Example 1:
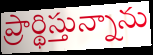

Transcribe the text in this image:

ప్రార్థిస్తున్నాను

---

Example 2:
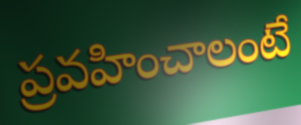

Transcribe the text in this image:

ప్రవహించాలంటే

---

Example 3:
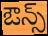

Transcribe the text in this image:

ఔన్స్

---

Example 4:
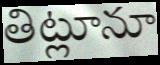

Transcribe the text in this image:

తిట్లూనూ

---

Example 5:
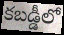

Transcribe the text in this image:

కబడ్డీలో